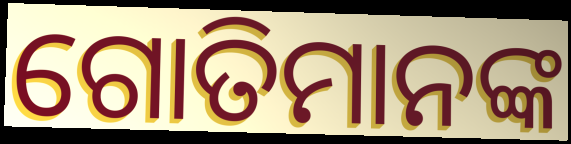
ଗୋତିମାନଙ୍କ